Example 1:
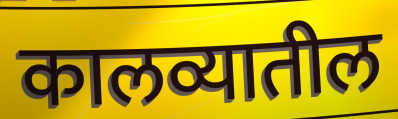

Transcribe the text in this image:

कालव्यातील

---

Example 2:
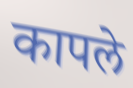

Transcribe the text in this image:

कापले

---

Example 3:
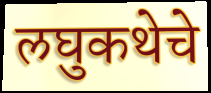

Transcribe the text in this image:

लघुकथेचे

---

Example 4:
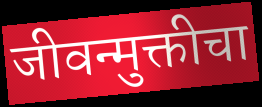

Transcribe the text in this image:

जीवन्मुक्तीचा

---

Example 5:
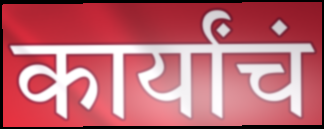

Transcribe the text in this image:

कार्यांचं